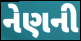
નેણની